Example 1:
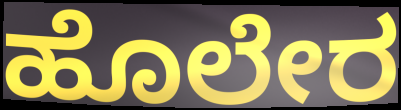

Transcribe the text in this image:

ಹೊಲೇರ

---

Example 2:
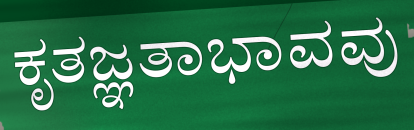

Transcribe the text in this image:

ಕೃತಜ್ಞತಾಭಾವವು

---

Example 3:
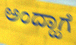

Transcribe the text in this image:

ಅಂದ್ಹಾಗೆ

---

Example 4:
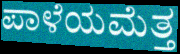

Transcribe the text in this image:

ಪಾಳೆಯಮೆತ್ತ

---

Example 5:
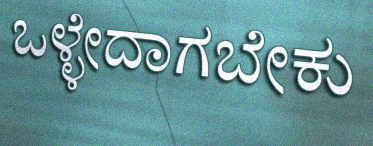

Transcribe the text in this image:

ಒಳ್ಳೇದಾಗಬೇಕು